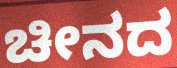
ಚೀನದ